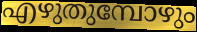
എഴുതുമ്പോഴും